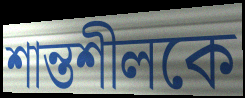
শান্তশীলকে